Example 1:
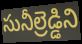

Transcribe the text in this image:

సునీల్రెడ్డిని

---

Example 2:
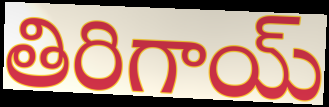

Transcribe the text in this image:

తిరిగాయ్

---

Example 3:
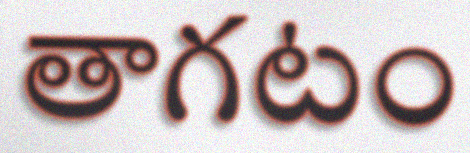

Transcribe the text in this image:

తాగటం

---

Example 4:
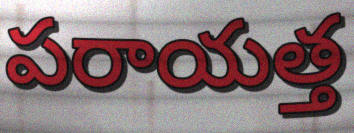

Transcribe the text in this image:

పరాయత్త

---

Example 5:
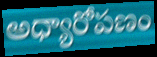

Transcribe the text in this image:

అధ్యారోపణం